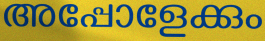
അപ്പോളേക്കും